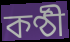
কণ্ঠী